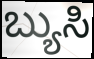
ಬ್ಯುಸಿ